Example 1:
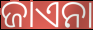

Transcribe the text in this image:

ଜାଏନା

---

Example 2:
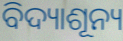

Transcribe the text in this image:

ବିଦ୍ୟାଶୂନ୍ୟ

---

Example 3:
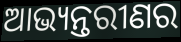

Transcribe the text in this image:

ଆଭ୍ୟନ୍ତରୀଣର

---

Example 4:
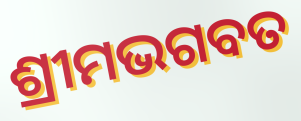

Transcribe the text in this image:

ଶ୍ରୀମଭଗବତ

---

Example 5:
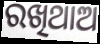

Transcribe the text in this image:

ରଖିଥାଅ